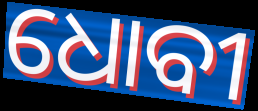
ଧୋବୀ